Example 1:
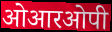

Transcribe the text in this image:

ओआरओपी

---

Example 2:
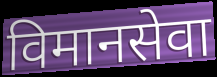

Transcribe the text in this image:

विमानसेवा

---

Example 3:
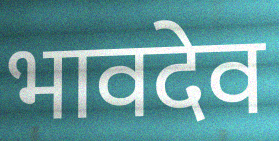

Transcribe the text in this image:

भावदेव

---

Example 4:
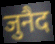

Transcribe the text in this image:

जुनैद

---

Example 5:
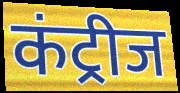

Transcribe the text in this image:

कंट्रीज